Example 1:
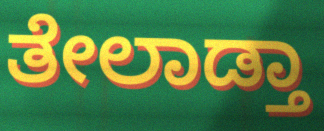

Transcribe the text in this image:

ತೇಲಾಡ್ತಾ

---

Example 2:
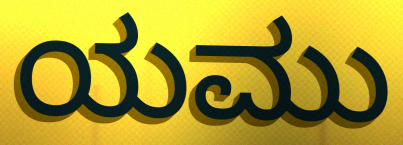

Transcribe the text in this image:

ಯಮು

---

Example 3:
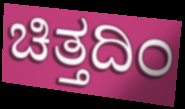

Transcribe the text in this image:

ಚಿತ್ತದಿಂ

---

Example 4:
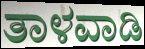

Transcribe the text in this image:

ತಾಳವಾಡಿ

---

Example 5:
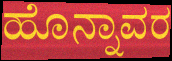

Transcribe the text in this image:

ಹೊನ್ನಾವರ